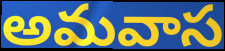
అమవాస